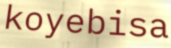
koyebisa